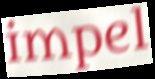
impel